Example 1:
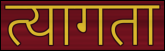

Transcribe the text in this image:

त्यागता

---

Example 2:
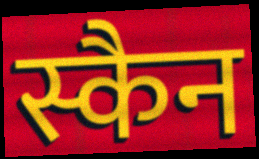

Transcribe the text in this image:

स्‍कैन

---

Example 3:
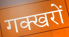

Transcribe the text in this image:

गक्खरों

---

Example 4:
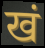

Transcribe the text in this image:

खं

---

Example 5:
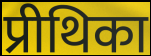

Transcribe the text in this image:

प्रीथिका